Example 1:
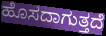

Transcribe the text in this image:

ಹೊಸದಾಗುತ್ತದೆ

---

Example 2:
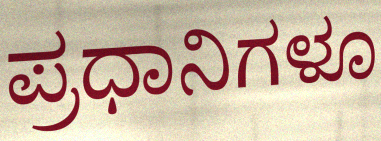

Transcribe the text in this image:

ಪ್ರಧಾನಿಗಳೂ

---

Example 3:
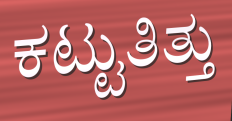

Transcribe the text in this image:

ಕಟ್ಟುತಿತ್ತು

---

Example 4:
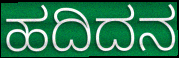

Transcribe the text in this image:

ಹದಿದನ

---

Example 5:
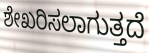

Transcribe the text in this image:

ಶೇಖರಿಸಲಾಗುತ್ತದೆ